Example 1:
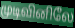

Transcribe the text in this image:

முடிவினிலே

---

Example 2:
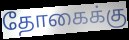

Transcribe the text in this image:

தோகைக்கு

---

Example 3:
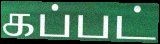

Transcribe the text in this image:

கப்பட்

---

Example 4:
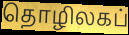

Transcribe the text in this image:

தொழிலகப்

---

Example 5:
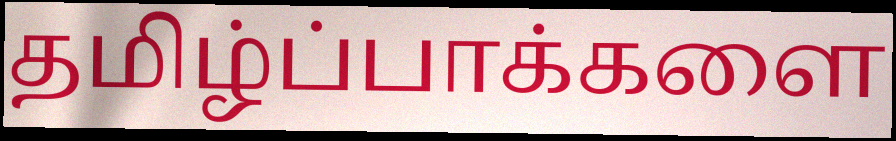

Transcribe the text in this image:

தமிழ்ப்பாக்களை